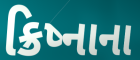
ક્રિષ્નાના